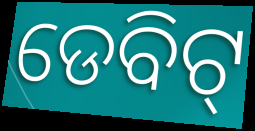
ଡେବିଟ୍